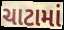
ચાટામાં